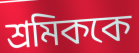
শ্রমিককে